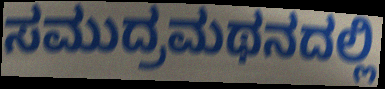
ಸಮುದ್ರಮಥನದಲ್ಲಿ